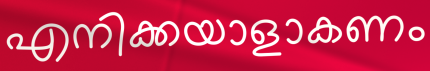
എനിക്കയാളാകണം